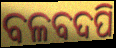
ବଳବଦପି